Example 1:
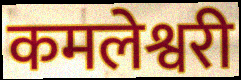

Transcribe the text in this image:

कमलेश्वरी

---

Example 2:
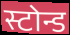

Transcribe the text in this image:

स्टोन्ड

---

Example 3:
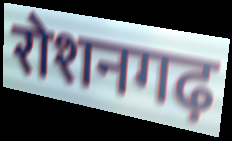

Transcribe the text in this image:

रोशनगढ़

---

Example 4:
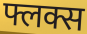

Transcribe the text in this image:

फ्लक्स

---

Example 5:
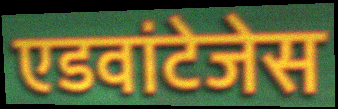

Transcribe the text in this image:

एडवांटेजेस